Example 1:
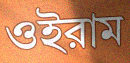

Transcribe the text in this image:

ওইরাম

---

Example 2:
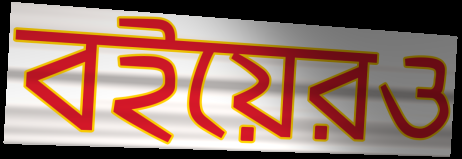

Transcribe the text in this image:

বইয়েরও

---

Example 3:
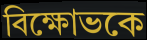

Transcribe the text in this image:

বিক্ষোভকে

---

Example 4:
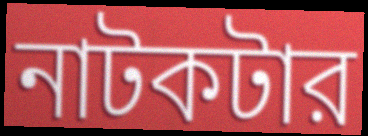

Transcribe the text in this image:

নাটকটার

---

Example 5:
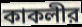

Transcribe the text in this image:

কাকলীর